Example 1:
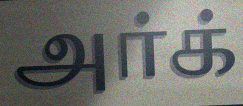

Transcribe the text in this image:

அர்க்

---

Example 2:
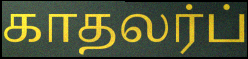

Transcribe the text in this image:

காதலர்ப்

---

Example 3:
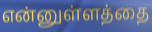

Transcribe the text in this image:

என்னுள்ளத்தை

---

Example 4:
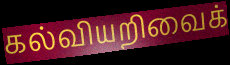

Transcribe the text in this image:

கல்வியறிவைக்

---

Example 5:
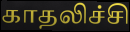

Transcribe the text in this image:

காதலிச்சி